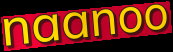
naanoo